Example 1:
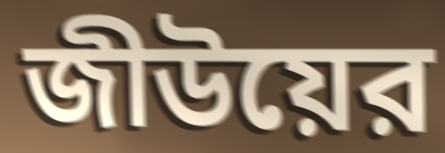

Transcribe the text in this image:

জীউয়ের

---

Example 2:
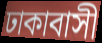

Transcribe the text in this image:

ঢাকাবাসী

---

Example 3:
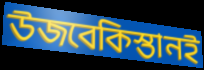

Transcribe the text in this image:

উজবেকিস্তানই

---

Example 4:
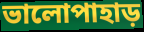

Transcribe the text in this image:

ভালোপাহাড়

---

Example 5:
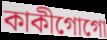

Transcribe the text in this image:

কাকীগোগো